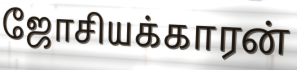
ஜோசியக்காரன்